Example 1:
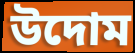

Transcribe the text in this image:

উদোম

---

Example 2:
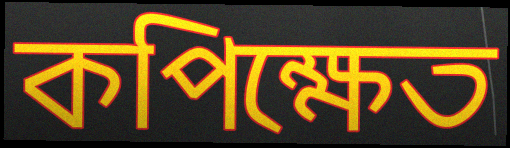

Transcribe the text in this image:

কপিক্ষেত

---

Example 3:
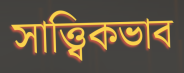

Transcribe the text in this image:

সাত্ত্বিকভাব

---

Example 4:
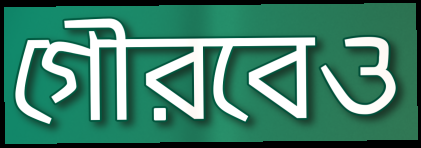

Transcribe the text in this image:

গৌরবেও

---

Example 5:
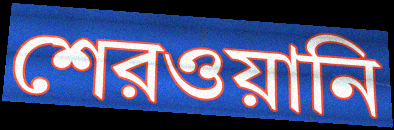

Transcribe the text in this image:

শেরওয়ানি